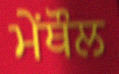
ਮੇਂਥੌਲ